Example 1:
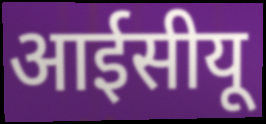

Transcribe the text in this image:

आईसीयू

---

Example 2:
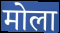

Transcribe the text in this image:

मोला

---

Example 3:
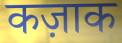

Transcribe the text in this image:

कज़ाक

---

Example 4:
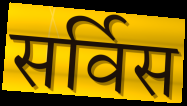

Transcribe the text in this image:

सर्विस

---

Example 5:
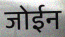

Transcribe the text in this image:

जोईन